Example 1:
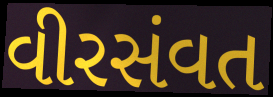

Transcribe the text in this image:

વીરસંવત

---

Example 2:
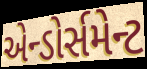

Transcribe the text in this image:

એન્ડોર્સમેન્ટ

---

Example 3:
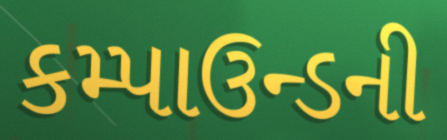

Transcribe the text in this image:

કમ્પાઉન્ડની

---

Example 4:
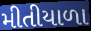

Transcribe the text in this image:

મીતીયાળા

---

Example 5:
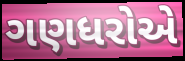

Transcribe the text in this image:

ગણધરોએ